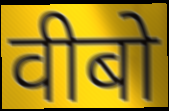
वीबो